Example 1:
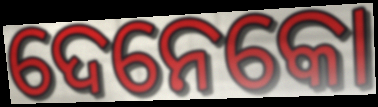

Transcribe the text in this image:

ଦେନେକୋ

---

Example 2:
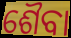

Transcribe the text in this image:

ଶୈବା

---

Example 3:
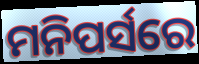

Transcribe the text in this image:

ମନିପର୍ସରେ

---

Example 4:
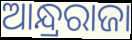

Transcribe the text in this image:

ଆନ୍ଧ୍ରରାଜା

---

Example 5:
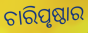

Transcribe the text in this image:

ଚାରିପୃଷ୍ଠାର